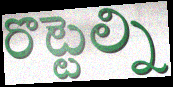
రొట్టెల్ని